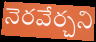
నెరవేర్చని